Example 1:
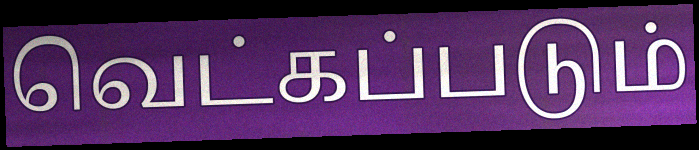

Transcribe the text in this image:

வெட்கப்படும்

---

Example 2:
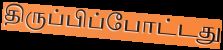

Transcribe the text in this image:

திருப்பிப்போட்டது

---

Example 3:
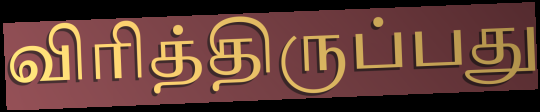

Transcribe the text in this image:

விரித்திருப்பது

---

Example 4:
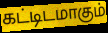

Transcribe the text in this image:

கட்டிடமாகும்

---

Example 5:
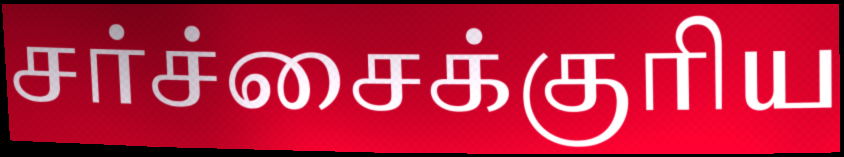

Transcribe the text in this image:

சர்ச்சைக்குரிய